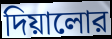
দিয়ালোর